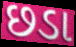
છડા